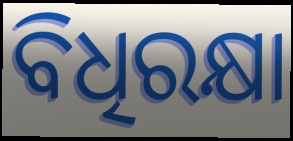
ବିଧିରକ୍ଷା